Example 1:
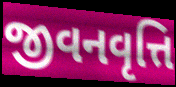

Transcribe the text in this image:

જીવનવૃત્તિ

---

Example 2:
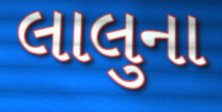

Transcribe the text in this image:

લાલુના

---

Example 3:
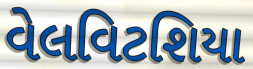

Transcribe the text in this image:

વેલવિટશિયા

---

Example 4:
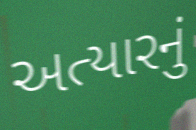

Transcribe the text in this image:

અત્યારનું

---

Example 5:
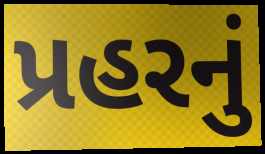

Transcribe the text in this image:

પ્રહરનું